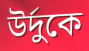
উর্দুকে